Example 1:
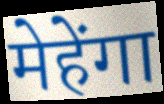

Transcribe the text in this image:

मेहेंगा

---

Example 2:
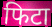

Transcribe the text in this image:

फिटा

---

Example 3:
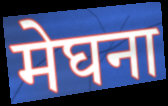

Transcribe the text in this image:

मेघना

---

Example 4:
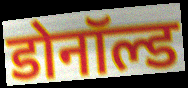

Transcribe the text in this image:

डोनॉल्ड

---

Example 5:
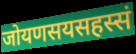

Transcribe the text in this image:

जोयणसयसहस्सं